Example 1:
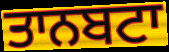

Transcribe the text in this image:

ਤਾਨਬਟਾ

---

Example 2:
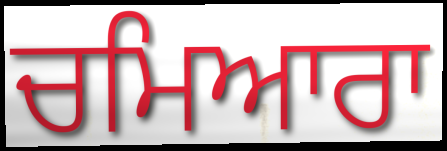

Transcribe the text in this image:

ਚਮਿਆਰਾ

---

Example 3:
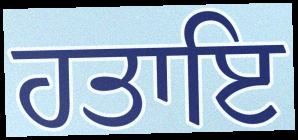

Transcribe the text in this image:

ਹਤਾਇ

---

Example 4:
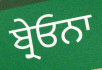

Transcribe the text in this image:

ਬ੍ਰੇਓਨਾ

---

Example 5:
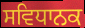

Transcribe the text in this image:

ਸਵਿਧਾਨਕ